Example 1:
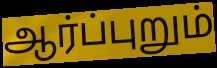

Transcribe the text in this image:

ஆர்ப்புறும்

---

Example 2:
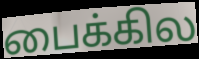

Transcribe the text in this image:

பைக்கில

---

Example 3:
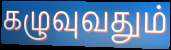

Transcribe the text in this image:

கழுவுவதும்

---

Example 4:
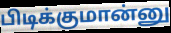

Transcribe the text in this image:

பிடிக்குமான்னு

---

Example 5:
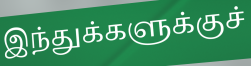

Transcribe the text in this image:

இந்துக்களுக்குச்